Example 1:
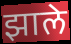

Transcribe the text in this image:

झाले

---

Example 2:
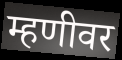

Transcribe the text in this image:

म्हणीवर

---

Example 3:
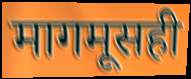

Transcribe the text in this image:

मागमूसही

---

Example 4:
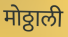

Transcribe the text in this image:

मोठ्ठाली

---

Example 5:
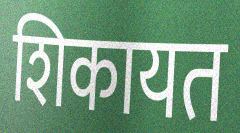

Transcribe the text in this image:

शिकायत